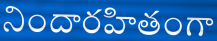
నిందారహితంగా